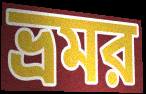
ভ্রমর